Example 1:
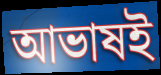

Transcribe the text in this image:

আভাষই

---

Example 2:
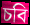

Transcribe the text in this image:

চবি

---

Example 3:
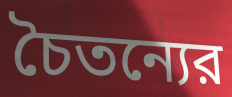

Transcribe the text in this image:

চৈতন্যের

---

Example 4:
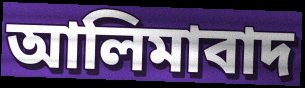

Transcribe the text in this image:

আলিমাবাদ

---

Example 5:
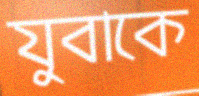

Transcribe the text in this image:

যুবাকে